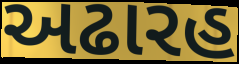
અઢારહ